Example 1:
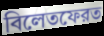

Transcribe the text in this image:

বিলেতফেরত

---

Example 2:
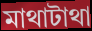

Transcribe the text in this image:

মাথাটাথা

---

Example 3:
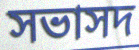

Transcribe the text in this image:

সভাসদ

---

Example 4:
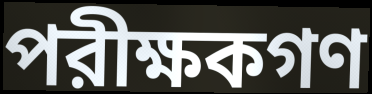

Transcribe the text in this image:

পরীক্ষকগণ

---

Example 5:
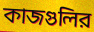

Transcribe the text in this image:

কাজগুলির